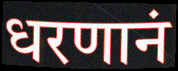
धरणानं